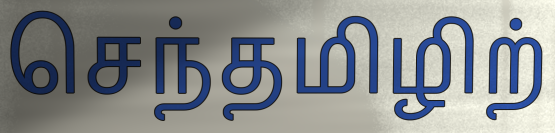
செந்தமிழிற்